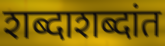
शब्दाशब्दांत